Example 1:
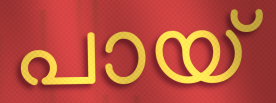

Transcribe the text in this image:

പായ്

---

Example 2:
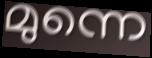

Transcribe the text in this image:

മുന്നെ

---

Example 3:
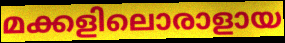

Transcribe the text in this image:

മക്കളിലൊരാളായ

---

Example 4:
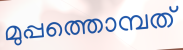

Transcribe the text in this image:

മുപ്പത്തൊമ്പത്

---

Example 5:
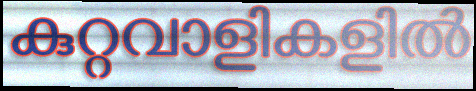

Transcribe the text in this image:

കുറ്റവാളികളിൽ